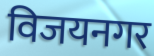
विजयनगर